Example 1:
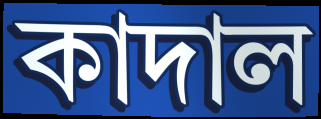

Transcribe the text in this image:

কাদাল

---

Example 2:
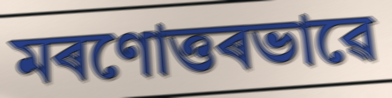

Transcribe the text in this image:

মৰণোত্তৰভাৱে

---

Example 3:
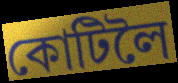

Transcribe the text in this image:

কোটিলৈ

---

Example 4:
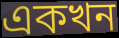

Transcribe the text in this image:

একখন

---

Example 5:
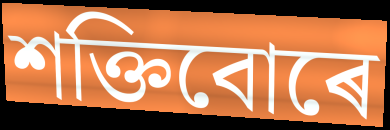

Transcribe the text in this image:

শক্তিবোৰে